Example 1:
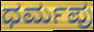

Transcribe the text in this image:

ಧರ್ಮಪು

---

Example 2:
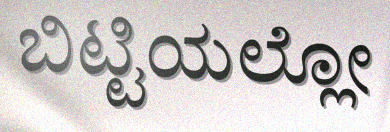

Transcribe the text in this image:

ಬಿಟ್ಟಿಯಲ್ಲೋ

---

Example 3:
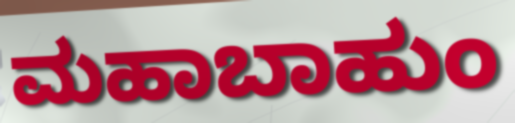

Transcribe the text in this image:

ಮಹಾಬಾಹುಂ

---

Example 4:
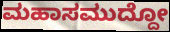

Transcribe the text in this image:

ಮಹಾಸಮುದ್ದೋ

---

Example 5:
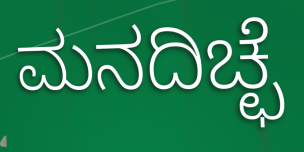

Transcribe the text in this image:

ಮನದಿಚ್ಛೆ